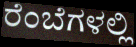
ರೆಂಬೆಗಳಲ್ಲಿ